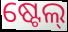
ଷ୍ଟେଲ୍